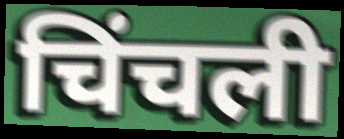
चिंचली